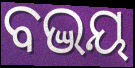
ବଦ୍ଭୟ